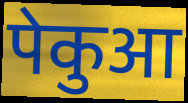
पेकुआ